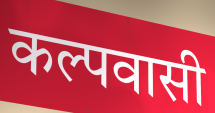
कल्पवासी